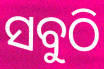
ସବୁଠି